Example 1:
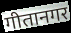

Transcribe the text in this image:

गीतानगर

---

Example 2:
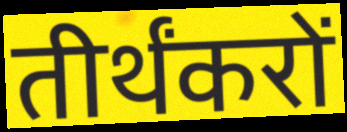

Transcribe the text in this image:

तीर्थंकरों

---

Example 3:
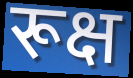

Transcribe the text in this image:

रूक्ष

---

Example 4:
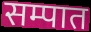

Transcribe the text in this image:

सम्पात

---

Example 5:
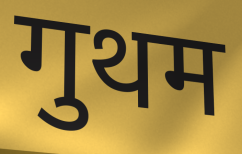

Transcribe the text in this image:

गुथम